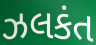
ઝલકંત